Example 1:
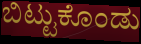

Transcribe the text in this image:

ಬಿಟ್ಟುಕೊಂಡು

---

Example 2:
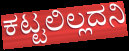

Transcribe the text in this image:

ಕಟ್ಟಲಿಲ್ಲದನಿ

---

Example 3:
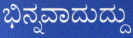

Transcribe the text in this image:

ಭಿನ್ನವಾದುದ್ದು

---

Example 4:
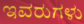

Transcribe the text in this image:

ಇವರುಗಳು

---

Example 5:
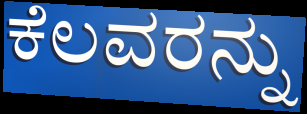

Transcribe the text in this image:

ಕೆಲವರನ್ನು